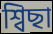
শ্বিছা